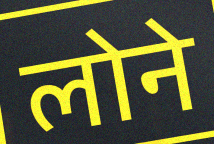
लोने